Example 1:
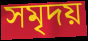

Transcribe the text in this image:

সমৃদয়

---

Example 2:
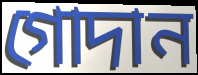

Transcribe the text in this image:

গোদান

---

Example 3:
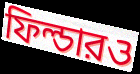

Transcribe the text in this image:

ফিল্ডারও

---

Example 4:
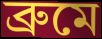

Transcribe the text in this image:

ব্রুমে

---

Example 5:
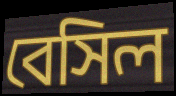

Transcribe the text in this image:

বেসিল